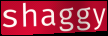
shaggy